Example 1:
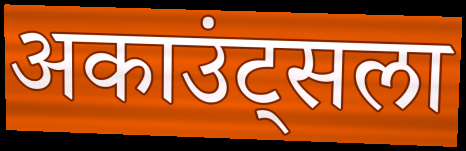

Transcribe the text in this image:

अकाउंट्सला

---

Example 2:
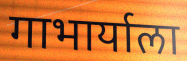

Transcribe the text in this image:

गाभार्याला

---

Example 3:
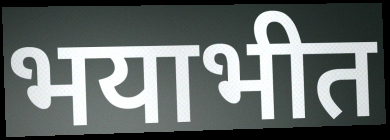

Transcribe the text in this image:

भयाभीत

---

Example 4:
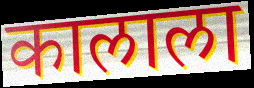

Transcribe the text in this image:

कालाला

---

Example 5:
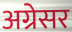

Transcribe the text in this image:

अग्रेसर